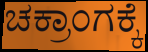
ಚಕ್ರಾಂಗಕ್ಕೆ